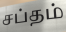
சப்தம்